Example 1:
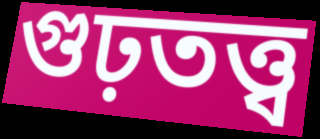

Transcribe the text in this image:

গুঢ়তত্ত্ব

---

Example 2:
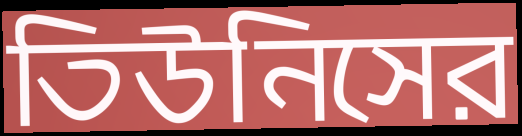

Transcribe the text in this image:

তিউনিসের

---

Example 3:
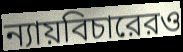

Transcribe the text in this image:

ন্যায়বিচারেরও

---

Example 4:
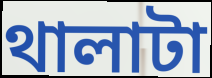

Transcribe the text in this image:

থালাটা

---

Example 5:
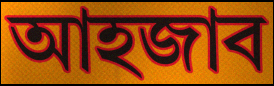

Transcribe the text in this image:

আহজাব